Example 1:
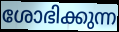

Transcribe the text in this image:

ശോഭിക്കുന്ന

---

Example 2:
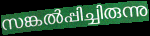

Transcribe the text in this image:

സങ്കൽപ്പിച്ചിരുന്നു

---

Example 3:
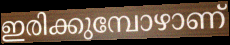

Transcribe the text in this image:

ഇരിക്കുമ്പോഴാണ്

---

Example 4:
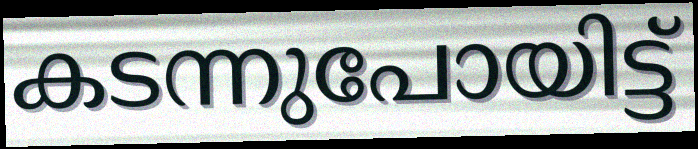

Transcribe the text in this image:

കടന്നുപോയിട്ട്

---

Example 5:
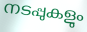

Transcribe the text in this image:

നടപ്പുകളും